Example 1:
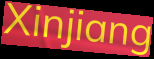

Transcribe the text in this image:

Xinjiang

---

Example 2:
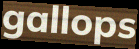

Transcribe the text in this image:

gallops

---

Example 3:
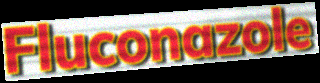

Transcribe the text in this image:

Fluconazole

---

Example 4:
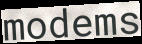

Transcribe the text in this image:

modems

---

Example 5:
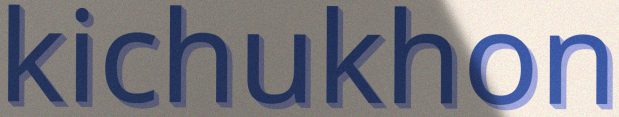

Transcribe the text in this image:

kichukhon